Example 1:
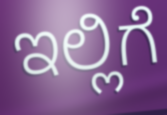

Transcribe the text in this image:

ಇಲ್ಲಿಗೆ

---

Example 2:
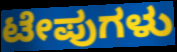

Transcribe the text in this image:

ಟೇಪುಗಳು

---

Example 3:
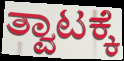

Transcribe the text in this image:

ತ್ವಾಟಕ್ಕೆ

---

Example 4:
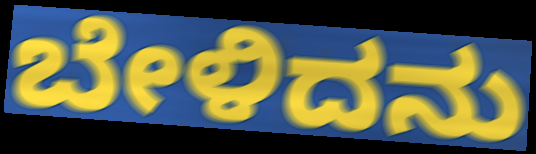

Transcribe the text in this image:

ಬೇಳಿದನು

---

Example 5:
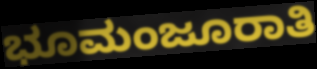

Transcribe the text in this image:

ಭೂಮಂಜೂರಾತಿ